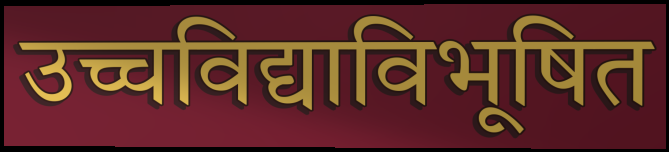
उच्चविद्याविभूषित